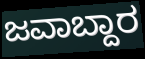
ಜವಾಬ್ದಾರ